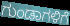
ಗುಂಡಾಗಳಿಗೆ